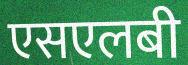
एसएलबी